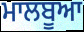
ਮਾਲਬੂਆ